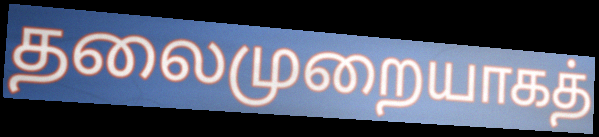
தலைமுறையாகத்